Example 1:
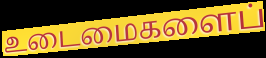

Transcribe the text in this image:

உடைமைகளைப்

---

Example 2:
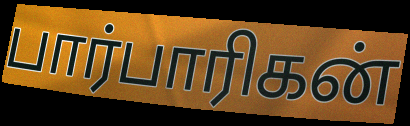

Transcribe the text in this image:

பார்பாரிகன்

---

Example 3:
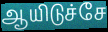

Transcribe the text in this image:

ஆயிடுச்சே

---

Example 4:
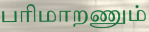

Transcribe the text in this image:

பரிமாறணும்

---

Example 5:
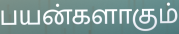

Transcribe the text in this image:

பயன்களாகும்